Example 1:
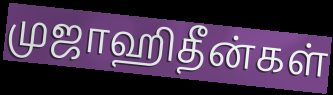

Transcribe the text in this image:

முஜாஹிதீன்கள்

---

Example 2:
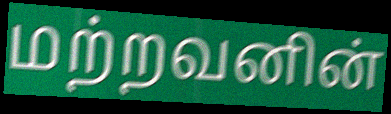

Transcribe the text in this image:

மற்றவனின்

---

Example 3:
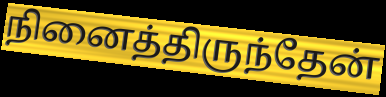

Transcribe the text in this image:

நினைத்திருந்தேன்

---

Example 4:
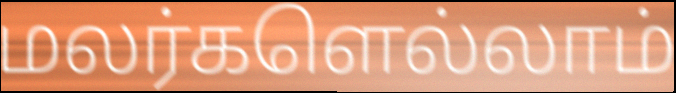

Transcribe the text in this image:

மலர்களெல்லாம்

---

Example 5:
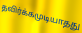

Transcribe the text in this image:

தவிர்க்கமுடியாதது